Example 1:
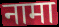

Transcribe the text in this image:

नामा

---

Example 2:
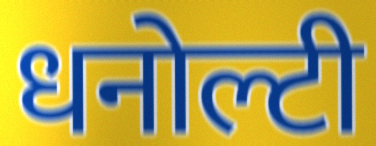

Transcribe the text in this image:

धनोल्‍टी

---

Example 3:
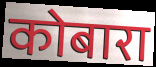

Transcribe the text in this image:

कोबारा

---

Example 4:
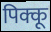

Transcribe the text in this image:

पिक्कू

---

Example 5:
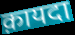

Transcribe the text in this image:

क़ायदा